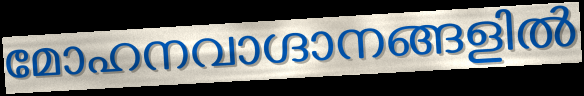
മോഹനവാഗ്ദാനങ്ങളിൽ